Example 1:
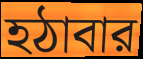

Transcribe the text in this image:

হঠাবার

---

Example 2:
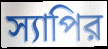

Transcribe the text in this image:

স্যাপির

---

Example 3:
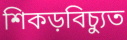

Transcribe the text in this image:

শিকড়বিচ্যুত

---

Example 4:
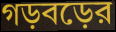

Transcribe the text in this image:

গড়বড়ের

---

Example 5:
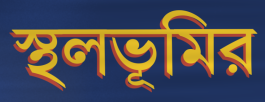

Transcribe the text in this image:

স্থলভূমির